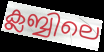
ക്ലബ്ബിലെ